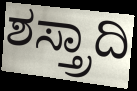
ಶಸ್ತ್ರಾದಿ